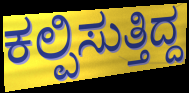
ಕಲ್ಪಿಸುತ್ತಿದ್ದ